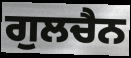
ਗੁਲਚੈਨ